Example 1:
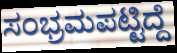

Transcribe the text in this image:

ಸಂಭ್ರಮಪಟ್ಟಿದ್ದೆ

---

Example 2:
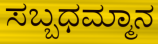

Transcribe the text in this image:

ಸಬ್ಬಧಮ್ಮಾನ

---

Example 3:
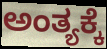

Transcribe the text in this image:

ಅಂತ್ಯಕ್ಕೆ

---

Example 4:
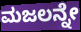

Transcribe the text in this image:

ಮಜಲನ್ನೇ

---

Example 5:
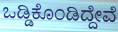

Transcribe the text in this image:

ಒಡ್ಡಿಕೊಂಡಿದ್ದೇವೆ